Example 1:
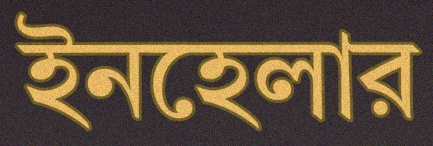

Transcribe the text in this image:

ইনহেলার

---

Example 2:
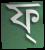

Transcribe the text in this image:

ফ্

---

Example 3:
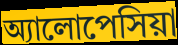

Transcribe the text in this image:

অ্যালোপেসিয়া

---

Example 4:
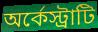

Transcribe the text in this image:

অর্কেস্ট্রাটি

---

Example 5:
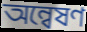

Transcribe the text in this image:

অন্বেষণ